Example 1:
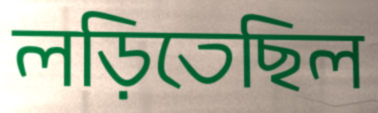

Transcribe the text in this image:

লড়িতেছিল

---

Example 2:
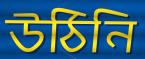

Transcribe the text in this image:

উঠিনি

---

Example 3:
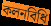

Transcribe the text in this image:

কলনবিধি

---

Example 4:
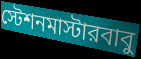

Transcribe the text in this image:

স্টেশনমাস্টারবাবু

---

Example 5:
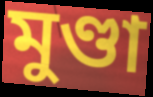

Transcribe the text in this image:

মুণ্ডা